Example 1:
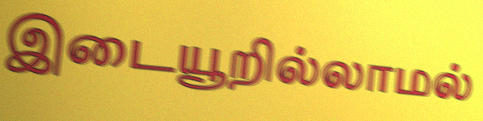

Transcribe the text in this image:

இடையூறில்லாமல்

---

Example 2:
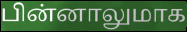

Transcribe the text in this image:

பின்னாலுமாக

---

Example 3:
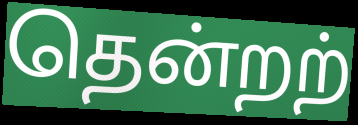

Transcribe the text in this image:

தென்றற்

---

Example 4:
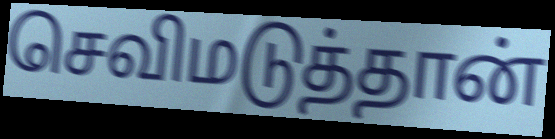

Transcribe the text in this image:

செவிமடுத்தான்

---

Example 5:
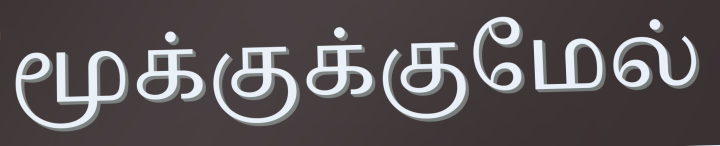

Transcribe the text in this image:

மூக்குக்குமேல்